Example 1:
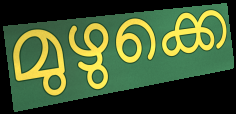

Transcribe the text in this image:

മുഴുക്കെ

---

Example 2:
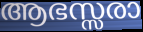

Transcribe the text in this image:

ആഭസ്സരാ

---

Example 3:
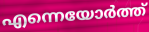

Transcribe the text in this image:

എന്നെയോർത്ത്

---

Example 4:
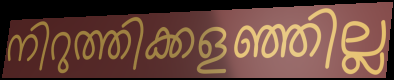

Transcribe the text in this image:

നിറുത്തിക്കളഞ്ഞില്ല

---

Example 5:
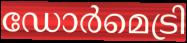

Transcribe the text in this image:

ഡോർമെട്രി